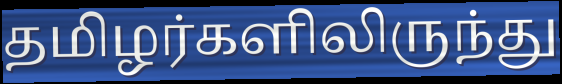
தமிழர்களிலிருந்து